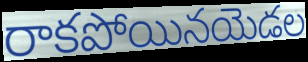
రాకపోయినయెడల